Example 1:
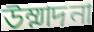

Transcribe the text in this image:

উম্মাদনা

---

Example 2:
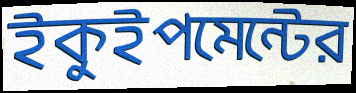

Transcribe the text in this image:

ইকুইপমেন্টের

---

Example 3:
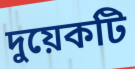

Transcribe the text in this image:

দুয়েকটি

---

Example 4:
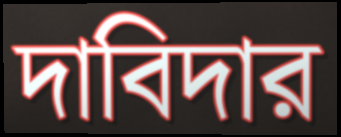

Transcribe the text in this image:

দাবিদার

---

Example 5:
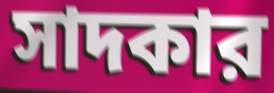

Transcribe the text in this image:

সাদকার